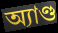
অ্যাণ্ড